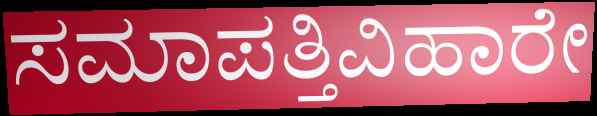
ಸಮಾಪತ್ತಿವಿಹಾರೇ